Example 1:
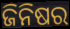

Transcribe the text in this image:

ଜିନିଷର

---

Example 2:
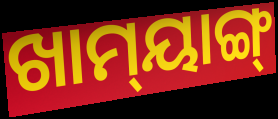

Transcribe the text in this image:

ଖାମ୍‌ୟାଙ୍ଗ୍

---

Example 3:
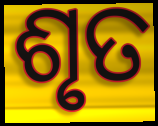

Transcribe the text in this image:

ଶୃତ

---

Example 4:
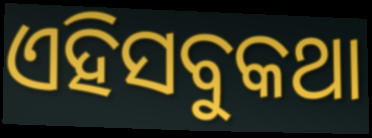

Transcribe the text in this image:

ଏହିସବୁକଥା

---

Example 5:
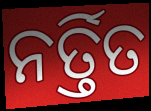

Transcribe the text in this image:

ନର୍ତ୍ତିତ